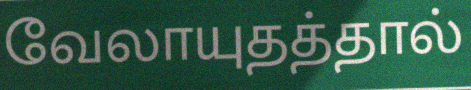
வேலாயுதத்தால்